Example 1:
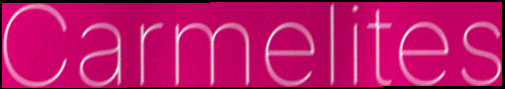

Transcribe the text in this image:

Carmelites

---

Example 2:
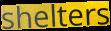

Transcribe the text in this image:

shelters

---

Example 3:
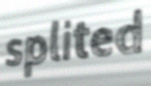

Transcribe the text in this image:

splited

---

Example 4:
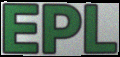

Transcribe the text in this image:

EPL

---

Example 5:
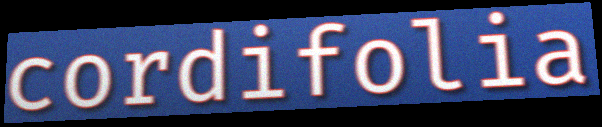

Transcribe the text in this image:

cordifolia